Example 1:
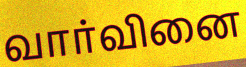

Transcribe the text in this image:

வார்வினை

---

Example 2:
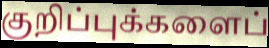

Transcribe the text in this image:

குறிப்புக்களைப்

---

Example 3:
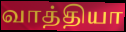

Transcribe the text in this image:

வாத்தியா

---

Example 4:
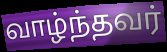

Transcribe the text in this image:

வாழ்ந்தவர்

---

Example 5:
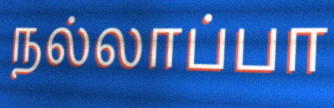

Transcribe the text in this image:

நல்லாப்பா